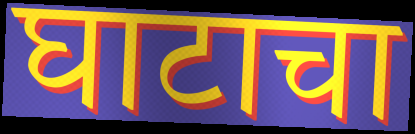
घाटाचा